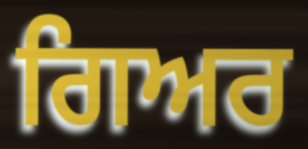
ਗਿਅਰ